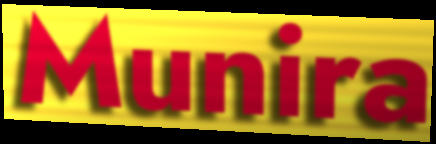
Munira